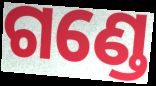
ଗଣ୍ଡେ